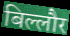
बिल्लौर